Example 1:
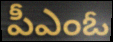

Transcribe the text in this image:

పీఎంఓ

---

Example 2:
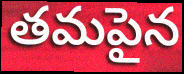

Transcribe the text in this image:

తమపైన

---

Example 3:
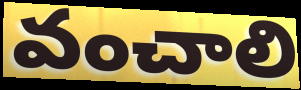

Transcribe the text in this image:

వంచాలి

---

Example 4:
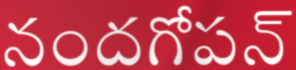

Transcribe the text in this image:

నందగోపన్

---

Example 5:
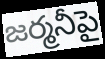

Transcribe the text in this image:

జర్మనీపై